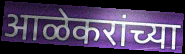
आळेकरांच्या